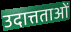
उदात्तताओं